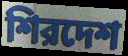
শিরদেশ